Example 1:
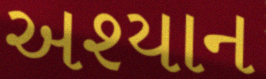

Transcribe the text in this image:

અશ્યાન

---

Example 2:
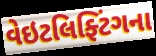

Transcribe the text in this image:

વેઇટલિફ્ટિંગના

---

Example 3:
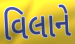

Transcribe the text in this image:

વિલાને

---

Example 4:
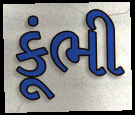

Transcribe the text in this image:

કૂંભી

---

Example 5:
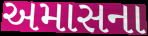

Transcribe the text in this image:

અમાસના